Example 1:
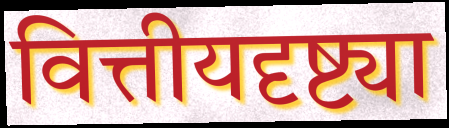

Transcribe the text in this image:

वित्तीयदृष्ट्या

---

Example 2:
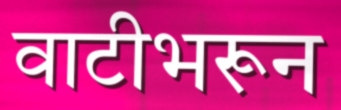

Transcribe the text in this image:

वाटीभरून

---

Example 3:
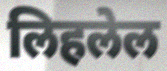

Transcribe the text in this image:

लिहलेल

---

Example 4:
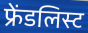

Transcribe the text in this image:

फ्रेंडलिस्ट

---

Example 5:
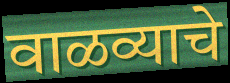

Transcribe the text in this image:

वाळव्याचे